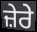
ਜ਼ੇਰੇ